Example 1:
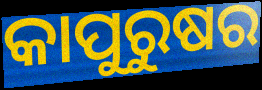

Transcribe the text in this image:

କାପୁରୁଷର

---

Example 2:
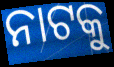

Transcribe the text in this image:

ନାଟକୁ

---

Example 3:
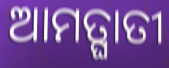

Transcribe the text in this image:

ଆମତ୍ଘାତୀ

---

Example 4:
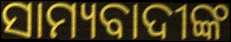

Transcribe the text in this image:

ସାମ୍ୟବାଦୀଙ୍କ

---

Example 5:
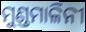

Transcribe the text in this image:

ମୁଣ୍ଡମାଳିନୀ